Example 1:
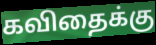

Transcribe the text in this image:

கவிதைக்கு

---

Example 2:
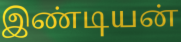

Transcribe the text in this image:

இண்டியன்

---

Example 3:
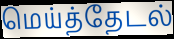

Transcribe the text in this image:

மெய்த்தேடல்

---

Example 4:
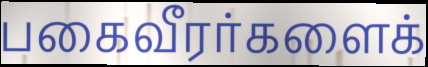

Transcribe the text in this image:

பகைவீரர்களைக்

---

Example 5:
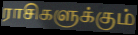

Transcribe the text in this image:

ராசிகளுக்கும்